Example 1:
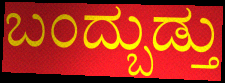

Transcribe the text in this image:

ಬಂದ್ಬುಡ್ತು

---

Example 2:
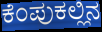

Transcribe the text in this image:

ಕೆಂಪುಕಲ್ಲಿನ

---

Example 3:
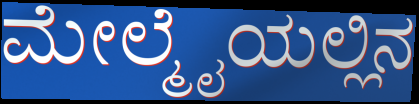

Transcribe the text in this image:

ಮೇಲ್ಮೈಯಲ್ಲಿನ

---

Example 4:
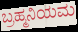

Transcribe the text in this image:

ಬ್ರಹ್ಮನಿಯಮ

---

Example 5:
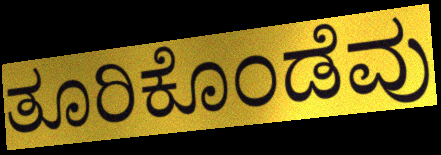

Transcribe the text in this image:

ತೂರಿಕೊಂಡೆವು